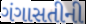
ગંગાસતીની